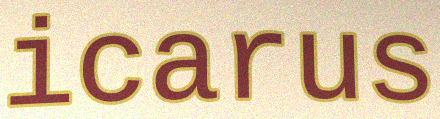
icarus